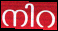
നിറ